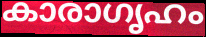
കാരാഗൃഹം